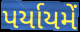
પર્યાયમેં